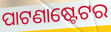
ପାଟଣାଷ୍ଟେଟର